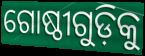
ଗୋଷ୍ଠୀଗୁଡ଼ିକୁ